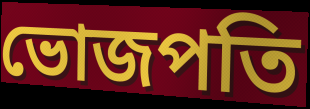
ভোজপতি